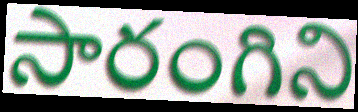
సారంగిని